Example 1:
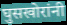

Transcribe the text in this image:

घुसखोरांनी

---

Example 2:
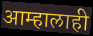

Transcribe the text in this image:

आम्हालाही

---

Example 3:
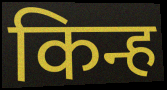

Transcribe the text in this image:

किन्ह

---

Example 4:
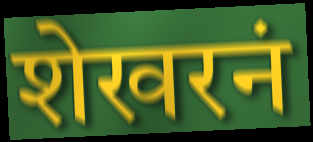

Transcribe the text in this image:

शेखरनं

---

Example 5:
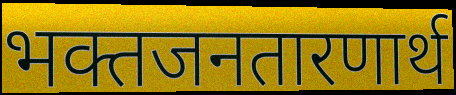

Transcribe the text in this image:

भक्तजनतारणार्थ